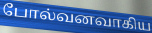
போல்வனவாகிய